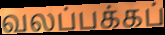
வலப்பக்கப்